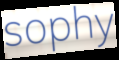
sophy